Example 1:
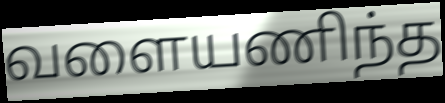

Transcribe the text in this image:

வளையணிந்த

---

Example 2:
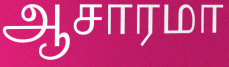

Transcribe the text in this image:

ஆசாரமா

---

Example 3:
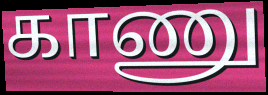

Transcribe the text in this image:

காணு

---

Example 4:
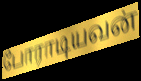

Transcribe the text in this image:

போராடியவன்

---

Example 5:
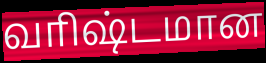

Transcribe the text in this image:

வரிஷ்டமான